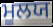
ਮੂਲਯ